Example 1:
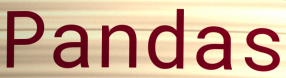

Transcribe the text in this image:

Pandas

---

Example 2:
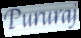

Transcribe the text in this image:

Pururaj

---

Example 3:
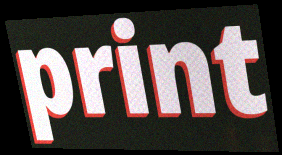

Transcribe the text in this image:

print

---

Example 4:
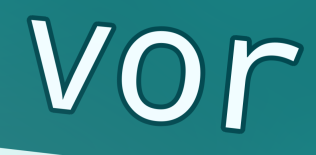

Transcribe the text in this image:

vor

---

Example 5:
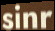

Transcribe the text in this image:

sinr